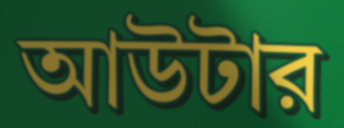
আউটার